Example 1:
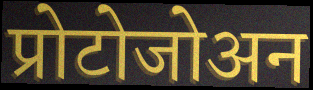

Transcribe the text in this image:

प्रोटोजोअन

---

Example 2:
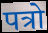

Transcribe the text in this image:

पत्रो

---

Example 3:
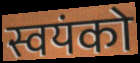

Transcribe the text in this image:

स्वयंको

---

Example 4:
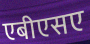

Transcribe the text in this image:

एबीएसए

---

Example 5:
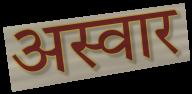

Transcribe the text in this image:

अस्वार